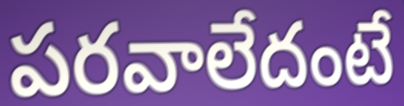
పరవాలేదంటే